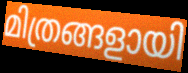
മിത്രങ്ങളായി